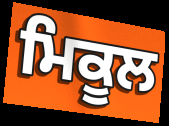
ਮਿਕੂਲ